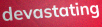
devastating